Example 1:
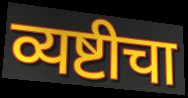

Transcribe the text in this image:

व्यष्टीचा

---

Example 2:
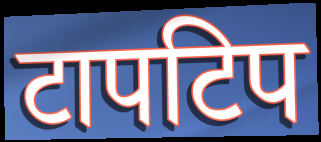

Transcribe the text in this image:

टापटिप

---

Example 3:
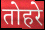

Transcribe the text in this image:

तोहरे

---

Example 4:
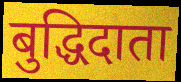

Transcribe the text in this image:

बुद्धिदाता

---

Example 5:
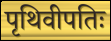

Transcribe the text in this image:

पृथिवीपतिः